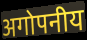
अगोपनीय